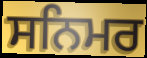
ਸਨਿਮਰ